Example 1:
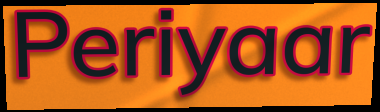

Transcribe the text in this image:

Periyaar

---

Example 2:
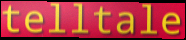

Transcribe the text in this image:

telltale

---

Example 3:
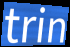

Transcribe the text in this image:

trin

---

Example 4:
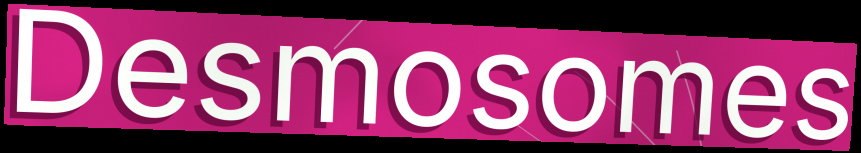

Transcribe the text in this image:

Desmosomes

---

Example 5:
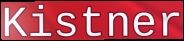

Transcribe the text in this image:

Kistner